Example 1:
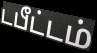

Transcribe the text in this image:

டபீட்டம்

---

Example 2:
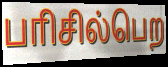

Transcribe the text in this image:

பரிசில்பெற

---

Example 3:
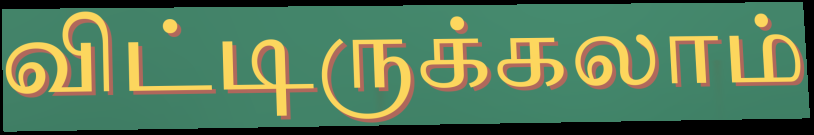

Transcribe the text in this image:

விட்டிருக்கலாம்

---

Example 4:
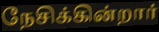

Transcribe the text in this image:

நேசிக்கின்றார்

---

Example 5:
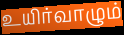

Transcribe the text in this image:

உயிர்வாழும்